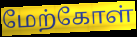
மேற்கோள்